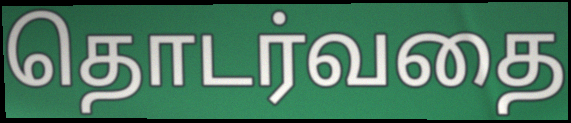
தொடர்வதை